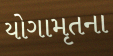
યોગામૃતના